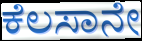
ಕೆಲಸಾನೇ